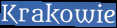
Krakowie